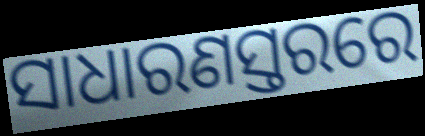
ସାଧାରଣସ୍ତରରେ